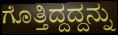
ಗೊತ್ತಿದ್ದದ್ದನ್ನು